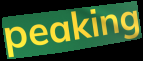
peaking